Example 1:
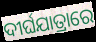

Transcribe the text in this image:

ଦୀର୍ଘଯାତ୍ରାରେ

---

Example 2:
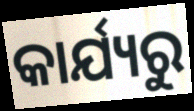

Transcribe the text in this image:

କାର୍ଯ୍ୟରୁ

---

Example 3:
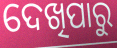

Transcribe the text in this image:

ଦେଖିପାରୁ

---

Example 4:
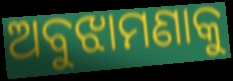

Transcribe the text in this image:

ଅବୁଝାମଣାକୁ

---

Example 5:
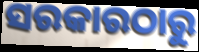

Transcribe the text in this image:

ସରକାରଠାରୁ